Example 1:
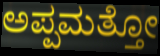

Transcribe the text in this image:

ಅಪ್ಪಮತ್ತೋ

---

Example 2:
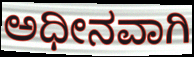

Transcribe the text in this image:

ಅಧೀನವಾಗಿ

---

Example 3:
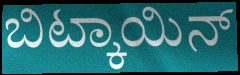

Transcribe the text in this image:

ಬಿಟ್ಕಾಯಿನ್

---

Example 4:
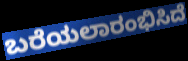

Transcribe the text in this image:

ಬರೆಯಲಾರಂಭಿಸಿದೆ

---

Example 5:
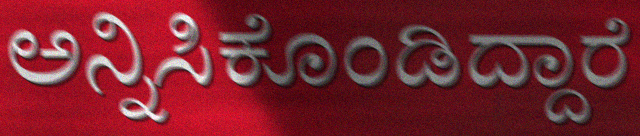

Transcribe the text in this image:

ಅನ್ನಿಸಿಕೊಂಡಿದ್ದಾರೆ